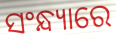
ସଂନ୍ଧ୍ୟାରେ